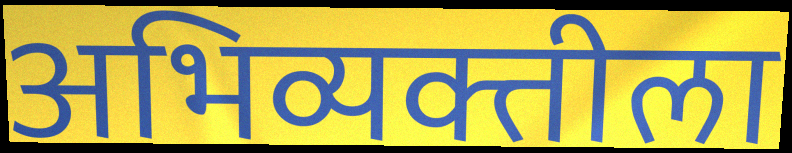
अभिव्यक्तीला